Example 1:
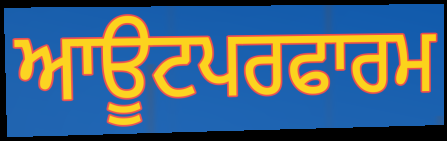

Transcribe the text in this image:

ਆਊਟਪਰਫਾਰਮ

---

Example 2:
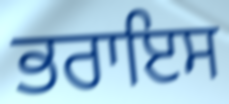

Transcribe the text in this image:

ਭਰਾਇਸ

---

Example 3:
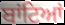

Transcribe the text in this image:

ਬਾਂਟਿਆਂ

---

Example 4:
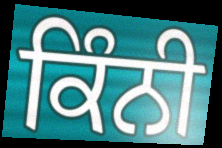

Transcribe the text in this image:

ਕਿੰਨੀ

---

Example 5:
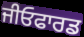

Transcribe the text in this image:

ਜੀਓਫਾਰਡ